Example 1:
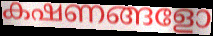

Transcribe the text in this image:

കഷണങ്ങളോ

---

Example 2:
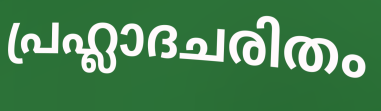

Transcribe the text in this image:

പ്രഹ്ലാദചരിതം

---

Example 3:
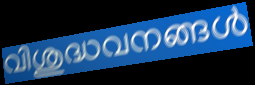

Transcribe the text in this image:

വിശുദ്ധവനങ്ങൾ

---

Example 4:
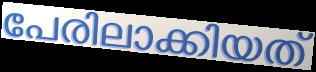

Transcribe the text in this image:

പേരിലാക്കിയത്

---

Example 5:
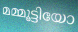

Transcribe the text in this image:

മമ്മൂട്ടിയോ